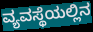
ವ್ಯವಸ್ಥೆಯಲ್ಲಿನ